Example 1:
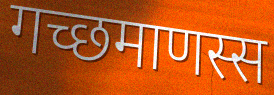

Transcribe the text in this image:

गच्छमाणस्स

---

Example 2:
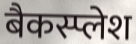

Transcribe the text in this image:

बैकस्प्लेश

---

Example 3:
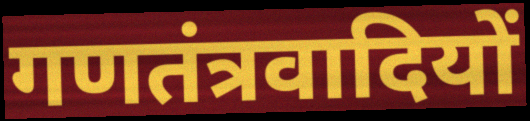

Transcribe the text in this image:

गणतंत्रवादियों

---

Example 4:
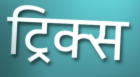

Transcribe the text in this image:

ट्रिक्स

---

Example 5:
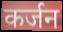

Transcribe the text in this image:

कर्जन